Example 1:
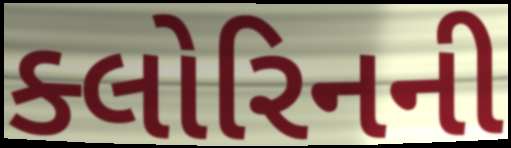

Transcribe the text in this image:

ક્લોરિનની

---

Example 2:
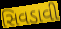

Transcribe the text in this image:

સિવડાવી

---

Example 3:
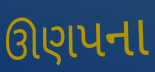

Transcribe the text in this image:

ઊણપના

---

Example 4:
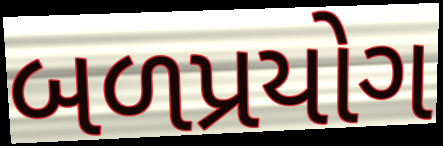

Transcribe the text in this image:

બળપ્રયોગ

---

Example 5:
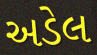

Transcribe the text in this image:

અડેલ